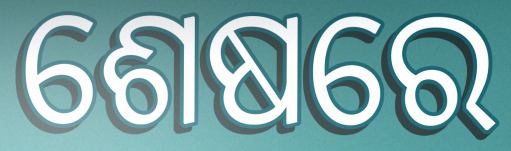
ଶେଷରେ